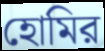
হোমির